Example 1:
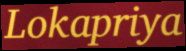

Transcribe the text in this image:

Lokapriya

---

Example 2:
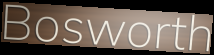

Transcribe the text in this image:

Bosworth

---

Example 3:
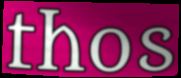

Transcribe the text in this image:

thos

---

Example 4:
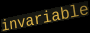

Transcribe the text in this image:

invariable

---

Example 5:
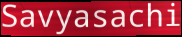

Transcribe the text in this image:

Savyasachi